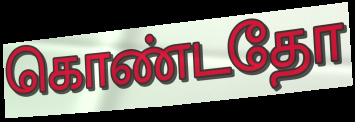
கொண்டதோ